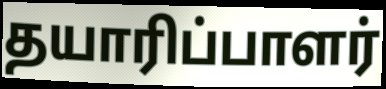
தயாரிப்பாளர்